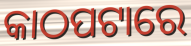
କାଠପଟାରେ